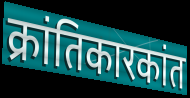
क्रांतिकारकांत